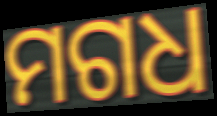
ମଗଧ